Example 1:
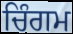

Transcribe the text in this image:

ਚਿੰਗਮ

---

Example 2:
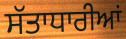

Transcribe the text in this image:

ਸੱਤਾਧਾਰੀਆਂ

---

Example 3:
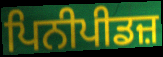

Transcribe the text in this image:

ਪਿਨੀਪੀਡਜ਼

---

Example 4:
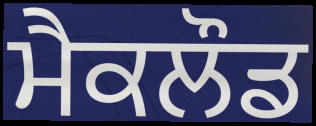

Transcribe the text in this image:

ਮੈਕਲੌਡ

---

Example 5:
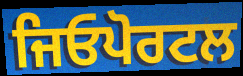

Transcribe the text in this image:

ਜਿਓਪੋਰਟਲ